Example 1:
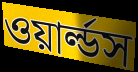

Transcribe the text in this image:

ওয়ার্ল্ডস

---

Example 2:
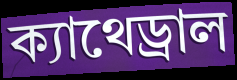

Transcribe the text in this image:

ক্যাথেড্রাল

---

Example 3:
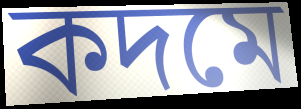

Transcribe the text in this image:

কদমে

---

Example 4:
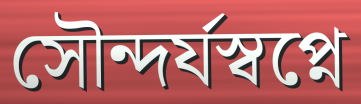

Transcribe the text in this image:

সৌন্দর্যস্বপ্নে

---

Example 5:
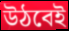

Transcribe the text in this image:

উঠবেই